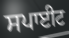
ਸਪਾਈਟ